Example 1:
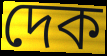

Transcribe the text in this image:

দেক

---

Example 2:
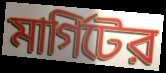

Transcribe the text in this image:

মার্গিটের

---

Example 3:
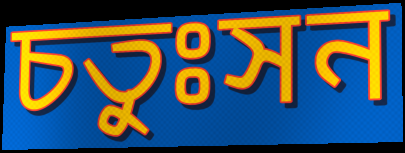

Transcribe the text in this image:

চতুঃসন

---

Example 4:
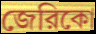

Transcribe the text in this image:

জেরিকো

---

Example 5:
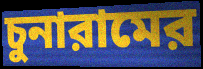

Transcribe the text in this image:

চুনারামের